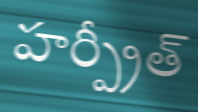
హర్ప్రీత్